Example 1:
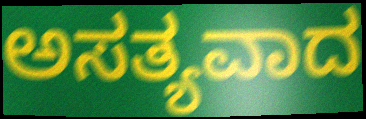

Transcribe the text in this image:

ಅಸತ್ಯವಾದ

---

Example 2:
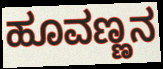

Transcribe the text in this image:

ಹೂವಣ್ಣನ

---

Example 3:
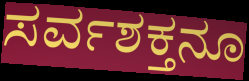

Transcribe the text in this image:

ಸರ್ವಶಕ್ತನೂ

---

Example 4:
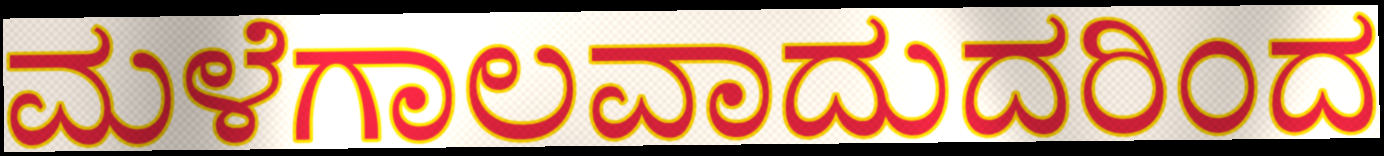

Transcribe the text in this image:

ಮಳೆಗಾಲವಾದುದರಿಂದ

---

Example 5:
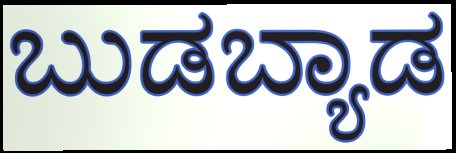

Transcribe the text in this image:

ಬುಡಬ್ಯಾಡ